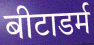
बीटाडर्म